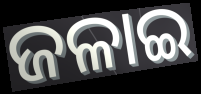
ଜଳାଇ